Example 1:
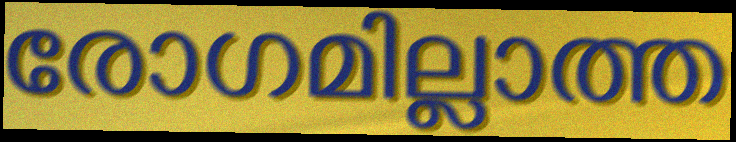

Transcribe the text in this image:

രോഗമില്ലാത്ത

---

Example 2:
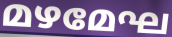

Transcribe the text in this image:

മഴമേഘ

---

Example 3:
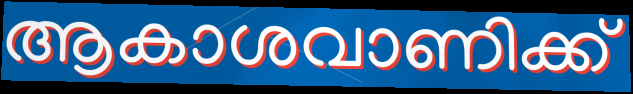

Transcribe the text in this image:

ആകാശവാണിക്ക്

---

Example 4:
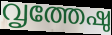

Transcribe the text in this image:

വൃത്തേഷു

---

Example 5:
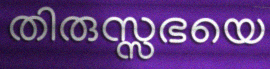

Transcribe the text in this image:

തിരുസ്സഭയെ